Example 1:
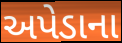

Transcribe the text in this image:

અપેડાના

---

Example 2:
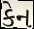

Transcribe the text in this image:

કેન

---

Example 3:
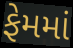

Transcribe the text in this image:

ફેમમાં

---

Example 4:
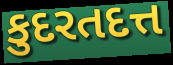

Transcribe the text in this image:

કુદરતદત્ત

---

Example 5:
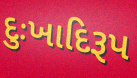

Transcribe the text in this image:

દુઃખાદિરૂપ